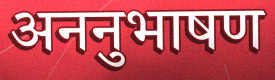
अननुभाषण